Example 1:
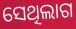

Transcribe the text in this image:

ସେଥିଲାଗ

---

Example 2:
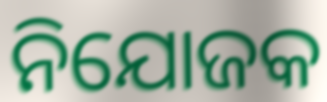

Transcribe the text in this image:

ନିଯୋଜକ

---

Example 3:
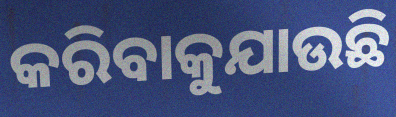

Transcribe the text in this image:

କରିବାକୁଯାଉଛି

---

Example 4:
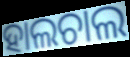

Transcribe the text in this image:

ହାଲଚାଲ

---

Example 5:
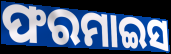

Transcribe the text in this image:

ଫରମାଇସ